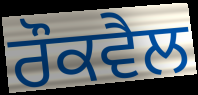
ਰੌਕਵੈਲ